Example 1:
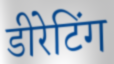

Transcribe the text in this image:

डीरेटिंग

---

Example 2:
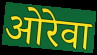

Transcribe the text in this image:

ओरेवा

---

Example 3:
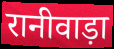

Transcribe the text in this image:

रानीवाड़ा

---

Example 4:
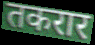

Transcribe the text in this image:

तकरार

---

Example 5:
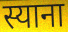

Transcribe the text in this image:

स्याना